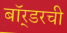
बॉर्डरची